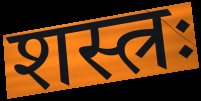
शस्त्रः